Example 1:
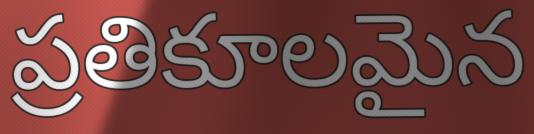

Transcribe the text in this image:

ప్రతికూలమైన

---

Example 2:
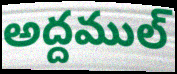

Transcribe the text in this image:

అద్దముల్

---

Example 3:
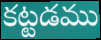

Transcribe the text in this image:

కట్టడము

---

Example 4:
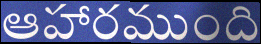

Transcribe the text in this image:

ఆహారముంది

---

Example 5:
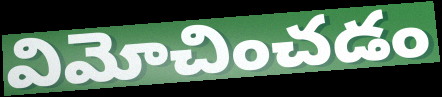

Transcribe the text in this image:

విమోచించడం